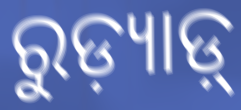
ରୁଡ଼୍ୟାଡ଼୍